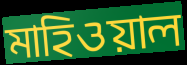
মাহিওয়াল